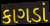
કાગડાં